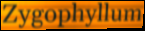
Zygophyllum